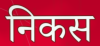
निकस